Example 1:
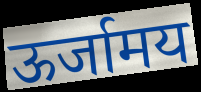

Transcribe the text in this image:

ऊर्जामय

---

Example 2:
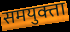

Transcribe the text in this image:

समयुक्ता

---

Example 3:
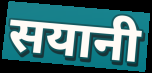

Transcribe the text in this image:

सयानी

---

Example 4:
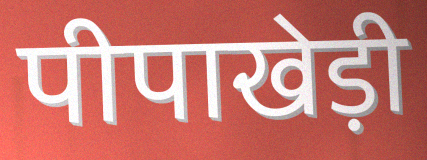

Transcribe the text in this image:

पीपाखेड़ी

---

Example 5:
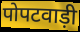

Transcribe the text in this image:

पोपटवाड़ी